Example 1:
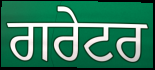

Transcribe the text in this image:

ਗਰੇਟਰ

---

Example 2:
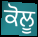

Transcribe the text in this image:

ਕੋਲੂ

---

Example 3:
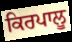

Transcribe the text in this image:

ਕਿਰਪਾਲੂ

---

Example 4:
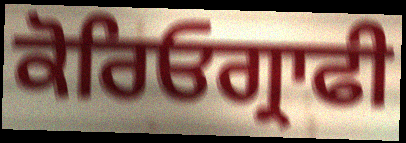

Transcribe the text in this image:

ਕੋਰਿਓਗ੍ਰਾਫੀ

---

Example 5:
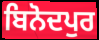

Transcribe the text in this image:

ਬਿਨੋਦਪੁਰ